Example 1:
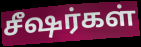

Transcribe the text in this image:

சீஷர்கள்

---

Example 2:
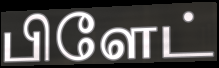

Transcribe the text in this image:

பிளேட்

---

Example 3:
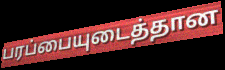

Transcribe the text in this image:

பரப்பையுடைத்தான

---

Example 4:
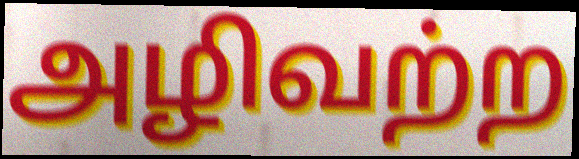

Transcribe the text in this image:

அழிவற்ற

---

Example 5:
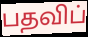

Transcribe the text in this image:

பதவிப்